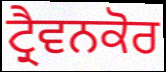
ਟ੍ਰੈਵਨਕੋਰ